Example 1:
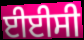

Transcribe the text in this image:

ਈਈਸੀ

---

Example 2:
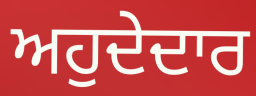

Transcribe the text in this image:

ਅਹੁਦੇਦਾਰ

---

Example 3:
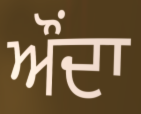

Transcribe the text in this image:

ਔਂਦਾ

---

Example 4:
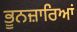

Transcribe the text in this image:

ਭੂਨਜ਼ਾਰਿਆਂ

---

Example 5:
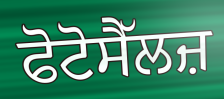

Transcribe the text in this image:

ਫੋਟੋਸੈੱਲਜ਼